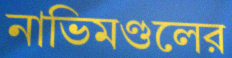
নাভিমণ্ডলের